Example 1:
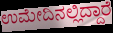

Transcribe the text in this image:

ಉಮೇದಿನಲ್ಲಿದ್ದಾರೆ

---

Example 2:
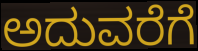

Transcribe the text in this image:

ಅದುವರೆಗೆ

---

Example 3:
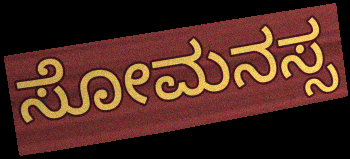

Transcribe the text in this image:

ಸೋಮನಸ್ಸ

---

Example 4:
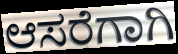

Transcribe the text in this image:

ಆಸರೆಗಾಗಿ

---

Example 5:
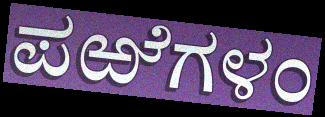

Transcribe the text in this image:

ಪಱೆಗಳಂ